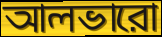
আলভারো